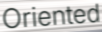
Oriented